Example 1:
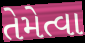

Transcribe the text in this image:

તેમેત્વા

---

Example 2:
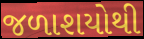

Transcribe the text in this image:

જળાશયોથી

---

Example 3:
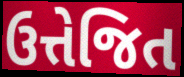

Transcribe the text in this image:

ઉત્તેજિત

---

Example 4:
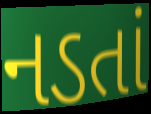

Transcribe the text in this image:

નડતાં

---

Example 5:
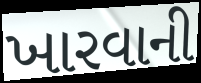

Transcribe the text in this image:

ખારવાની